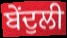
ਬੇਂਦੁਲੀ